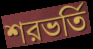
শরভর্তি